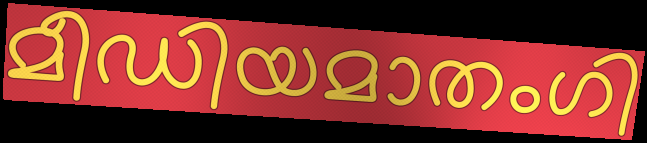
മീഡിയമാതംഗി